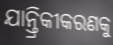
ଯାନ୍ତ୍ରିକୀକରଣକୁ